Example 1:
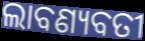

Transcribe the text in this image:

ଲାବଣ୍ୟବତୀ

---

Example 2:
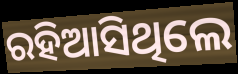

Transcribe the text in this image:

ରହିଆସିଥିଲେ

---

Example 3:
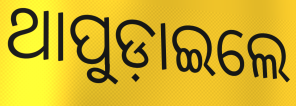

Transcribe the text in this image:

ଥାପୁଡ଼ାଇଲେ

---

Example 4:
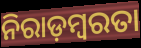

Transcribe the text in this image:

ନିରାଡ଼ମ୍ବରତା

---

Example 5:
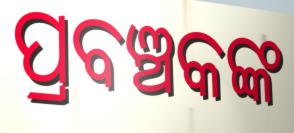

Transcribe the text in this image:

ପ୍ରବଞ୍ଚକଙ୍କ